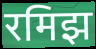
रमिझ